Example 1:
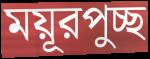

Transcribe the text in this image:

ময়ূরপুচ্ছ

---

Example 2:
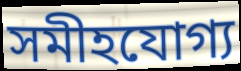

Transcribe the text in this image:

সমীহযোগ্য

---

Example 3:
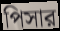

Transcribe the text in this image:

পিসার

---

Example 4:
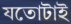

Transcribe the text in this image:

যতোটাই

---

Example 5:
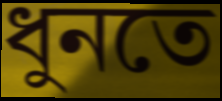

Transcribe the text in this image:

ধুনতে